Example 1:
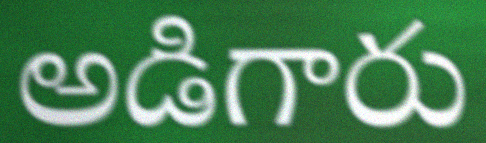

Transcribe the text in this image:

అడిగారు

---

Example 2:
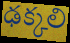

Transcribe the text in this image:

ఢక్కలి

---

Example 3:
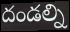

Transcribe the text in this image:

దండల్ని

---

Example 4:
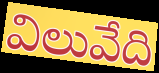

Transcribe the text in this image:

విలువేది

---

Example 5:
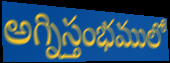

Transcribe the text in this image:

అగ్నిస్తంభములో